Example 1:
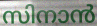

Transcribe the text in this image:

സിനാൻ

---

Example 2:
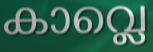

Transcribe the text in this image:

കാവ്ലെ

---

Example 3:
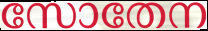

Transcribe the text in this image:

സോതേന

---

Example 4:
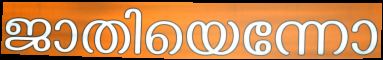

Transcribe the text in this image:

ജാതിയെന്നോ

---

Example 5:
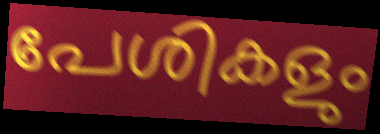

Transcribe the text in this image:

പേശികളും